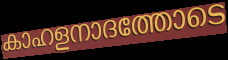
കാഹളനാദത്തോടെ